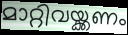
മാറ്റിവയ്ക്കണം